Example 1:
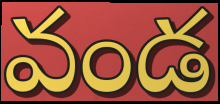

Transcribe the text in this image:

వండ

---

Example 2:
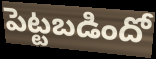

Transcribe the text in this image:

పెట్టబడిందో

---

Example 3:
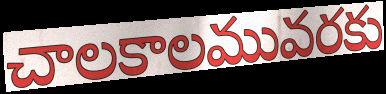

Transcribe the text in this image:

చాలకాలమువరకు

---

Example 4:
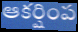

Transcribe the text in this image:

ఆకర్షింప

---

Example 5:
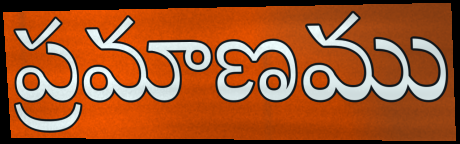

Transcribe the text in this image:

ప్రమాణము